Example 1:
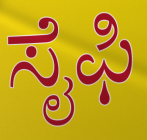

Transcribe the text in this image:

ಸೈಫಿ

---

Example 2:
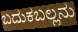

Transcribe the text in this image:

ಬದುಕಬಲ್ಲನು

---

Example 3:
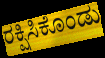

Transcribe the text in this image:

ರಕ್ಷಿಸಿಕೊಂಡು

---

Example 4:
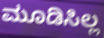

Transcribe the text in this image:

ಮೂಡಿಸಿಲ್ಲ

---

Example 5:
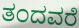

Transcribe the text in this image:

ತಂದವರೆ